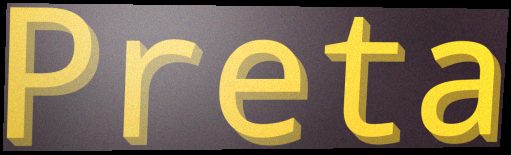
Preta